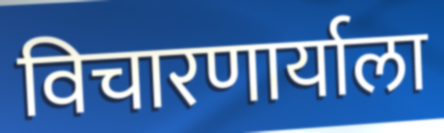
विचारणार्याला